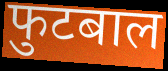
फुटबाल